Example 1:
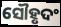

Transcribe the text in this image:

ସୌହୃଦଂ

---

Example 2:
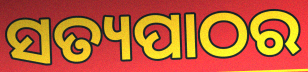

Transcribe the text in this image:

ସତ୍ୟପାଠର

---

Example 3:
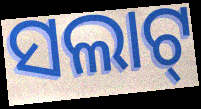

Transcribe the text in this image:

ସଲାଟ୍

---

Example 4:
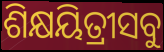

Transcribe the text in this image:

ଶିକ୍ଷୟିତ୍ରୀସବୁ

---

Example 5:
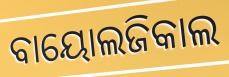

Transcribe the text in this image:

ବାୟୋଲଜିକାଲ